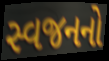
સ્વજનનો